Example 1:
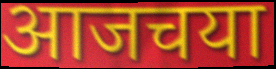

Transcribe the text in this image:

आजचया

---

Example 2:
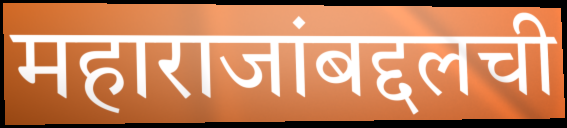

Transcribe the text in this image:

महाराजांबद्दलची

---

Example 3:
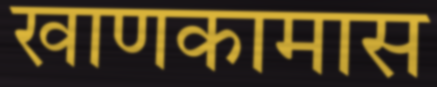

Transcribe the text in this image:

खाणकामास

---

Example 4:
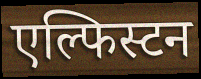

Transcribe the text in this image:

एल्फिस्टन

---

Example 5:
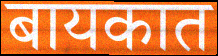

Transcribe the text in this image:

बायकात